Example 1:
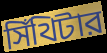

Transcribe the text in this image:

সিঁথিটার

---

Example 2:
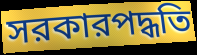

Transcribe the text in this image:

সরকারপদ্ধতি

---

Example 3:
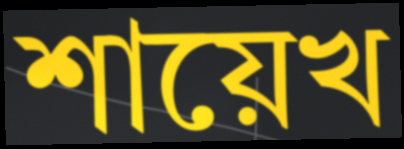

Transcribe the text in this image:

শায়েখ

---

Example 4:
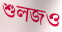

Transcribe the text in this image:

শুলজও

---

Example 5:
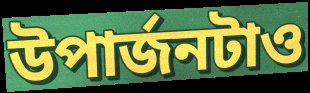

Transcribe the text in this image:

উপার্জনটাও